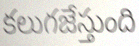
కలుగజేస్తుంది